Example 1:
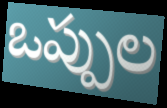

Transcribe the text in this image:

ఒప్పుల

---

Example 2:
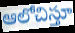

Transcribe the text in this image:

ఆలోచిస్తూ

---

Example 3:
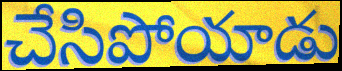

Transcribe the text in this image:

చేసిపోయాడు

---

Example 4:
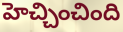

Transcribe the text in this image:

హెచ్చించింది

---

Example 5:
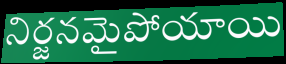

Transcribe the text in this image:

నిర్జనమైపోయాయి